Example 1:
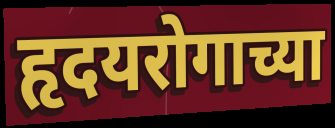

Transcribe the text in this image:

हृदयरोगाच्या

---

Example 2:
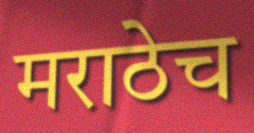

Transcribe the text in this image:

मराठेच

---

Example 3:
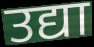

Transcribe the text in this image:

उद्या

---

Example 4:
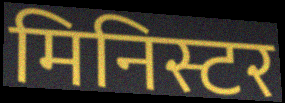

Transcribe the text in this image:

मिनिस्टर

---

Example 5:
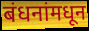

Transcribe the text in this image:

बंधनांमधून